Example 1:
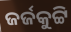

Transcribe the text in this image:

ଜର୍ଜକୁଟ୍ଟି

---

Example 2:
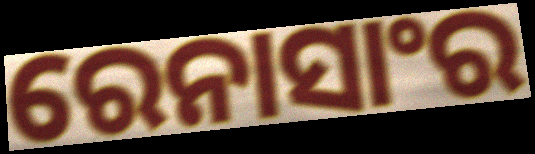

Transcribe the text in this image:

ରେନାସାଂର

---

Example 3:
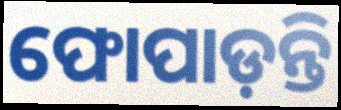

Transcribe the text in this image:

ଫୋପାଡ଼ନ୍ତି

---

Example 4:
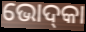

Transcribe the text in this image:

ଭୋଦ୍‌କା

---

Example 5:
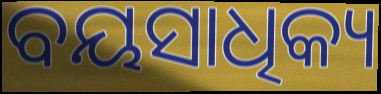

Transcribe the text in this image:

ବୟସାଧିକ୍ୟ